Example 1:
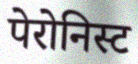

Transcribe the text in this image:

पेरोनिस्ट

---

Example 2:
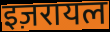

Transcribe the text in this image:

इज़रायल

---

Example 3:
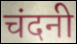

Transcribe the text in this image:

चंदनी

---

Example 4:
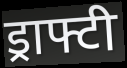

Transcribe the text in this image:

ड्राफ्टी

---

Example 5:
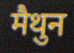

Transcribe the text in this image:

मैथुन